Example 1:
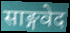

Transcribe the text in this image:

साङ्गवेद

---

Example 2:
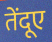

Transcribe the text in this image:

तेंदूए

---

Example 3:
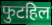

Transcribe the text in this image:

फुटहिल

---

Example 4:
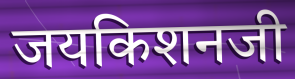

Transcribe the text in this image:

जयकिशनजी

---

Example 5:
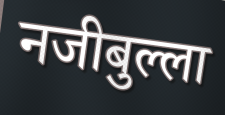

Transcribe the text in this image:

नजीबुल्ला